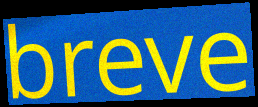
breve